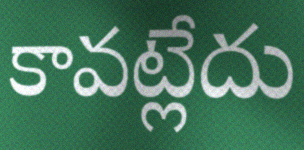
కావట్లేదు